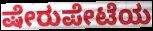
ಷೇರುಪೇಟೆಯ